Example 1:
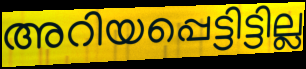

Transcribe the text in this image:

അറിയപ്പെട്ടിട്ടില്ല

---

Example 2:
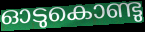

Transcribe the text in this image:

ഓടുകൊണ്ടു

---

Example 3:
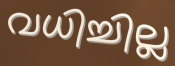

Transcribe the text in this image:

വധിച്ചില്ല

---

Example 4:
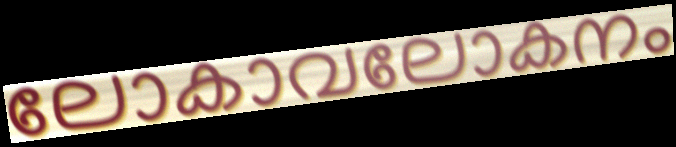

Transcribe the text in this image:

ലോകാവലോകനം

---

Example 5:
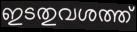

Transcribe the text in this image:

ഇടതുവശത്ത്